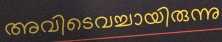
അവിടെവച്ചായിരുന്നു